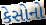
કેસોનો